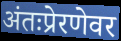
अंतःप्रेरणेवर